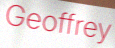
Geoffrey